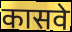
कासवे